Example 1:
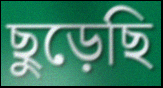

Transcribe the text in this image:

ছুড়েছি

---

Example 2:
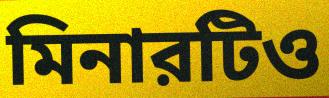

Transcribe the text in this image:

মিনারটিও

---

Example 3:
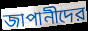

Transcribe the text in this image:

জাপানীদের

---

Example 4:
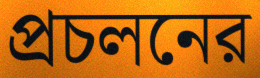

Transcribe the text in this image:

প্রচলনের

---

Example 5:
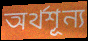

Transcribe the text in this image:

অর্থশূন্য